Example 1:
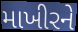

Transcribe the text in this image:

માખીરને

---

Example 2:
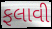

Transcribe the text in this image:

ફલાવી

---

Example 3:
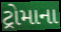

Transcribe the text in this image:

ટ્રોમાના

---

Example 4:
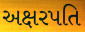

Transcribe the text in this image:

અક્ષરપતિ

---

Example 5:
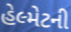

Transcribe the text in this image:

હેલ્મેટની